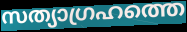
സത്യാഗ്രഹത്തെ